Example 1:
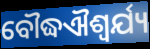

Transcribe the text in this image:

ବୌଦ୍ଧଐଶ୍ୱର୍ଯ୍ୟ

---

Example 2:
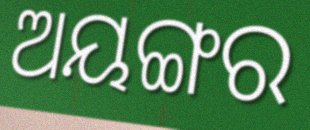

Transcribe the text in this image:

ଅୟଙ୍ଗର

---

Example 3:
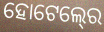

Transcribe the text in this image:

ହୋଟେଲ୍‍ରେ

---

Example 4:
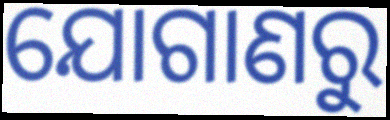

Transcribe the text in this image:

ଯୋଗାଣରୁ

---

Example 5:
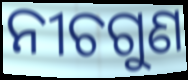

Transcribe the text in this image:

ନୀଚଗୁଣ